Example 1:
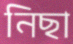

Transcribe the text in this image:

নিছা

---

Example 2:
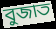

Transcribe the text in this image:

বুজাত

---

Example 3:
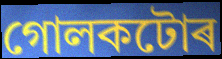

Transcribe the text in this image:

গোলকটোৰ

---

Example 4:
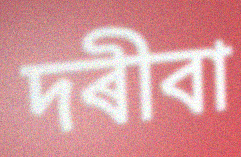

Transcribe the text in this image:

দৰীবা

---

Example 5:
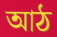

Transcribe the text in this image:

আঠ